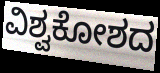
ವಿಶ್ವಕೋಶದ